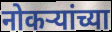
नोकर्‍यांच्या